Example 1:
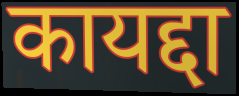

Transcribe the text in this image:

कायद्दा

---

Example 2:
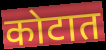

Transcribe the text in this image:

कोटात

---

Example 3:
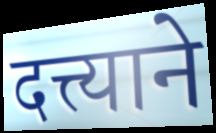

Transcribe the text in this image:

दत्त्याने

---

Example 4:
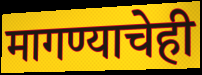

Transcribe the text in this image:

मागण्याचेही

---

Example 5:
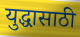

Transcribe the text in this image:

युद्धासाठी